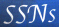
SSNs